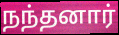
நந்தனார்